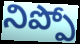
నిప్పో